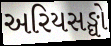
અરિયસઙ્ઘો